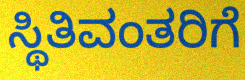
ಸ್ಥಿತಿವಂತರಿಗೆ